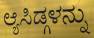
ಆ್ಯಸಿಡ್ಗಳನ್ನು